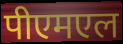
पीएमएल